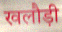
खलौड़ी